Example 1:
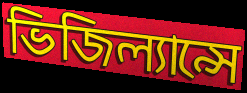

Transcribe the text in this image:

ভিজিল্যান্সে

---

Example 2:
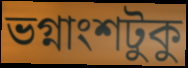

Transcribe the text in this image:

ভগ্নাংশটুকু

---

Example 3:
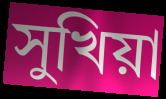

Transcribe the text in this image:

সুখিয়া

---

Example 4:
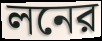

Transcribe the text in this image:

লনের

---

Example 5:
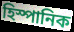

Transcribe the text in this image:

হিস্পানিক